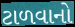
ટાળવાનો